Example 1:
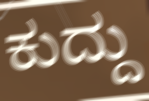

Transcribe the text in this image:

ಕುದ್ದು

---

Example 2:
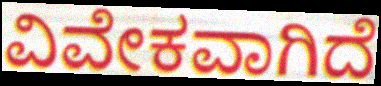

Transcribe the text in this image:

ವಿವೇಕವಾಗಿದೆ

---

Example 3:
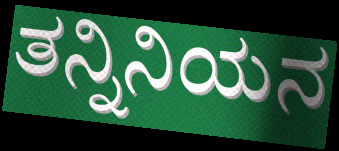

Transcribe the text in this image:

ತನ್ನಿನಿಯನ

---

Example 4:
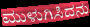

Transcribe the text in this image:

ಮುಳುಗಿಸಿದನು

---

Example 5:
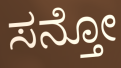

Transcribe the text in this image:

ಸನ್ತೋ